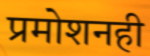
प्रमोशनही